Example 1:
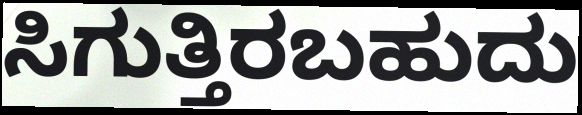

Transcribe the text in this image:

ಸಿಗುತ್ತಿರಬಹುದು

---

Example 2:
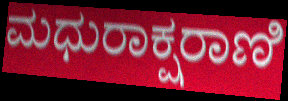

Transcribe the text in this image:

ಮಧುರಾಕ್ಷರಾಣಿ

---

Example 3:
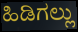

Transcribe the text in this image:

ಹಿಡಿಗಲ್ಲು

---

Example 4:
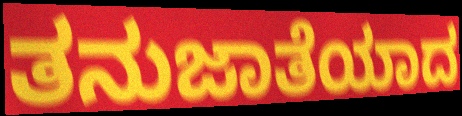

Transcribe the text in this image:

ತನುಜಾತೆಯಾದ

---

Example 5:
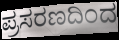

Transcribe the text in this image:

ಪ್ರಸರಣದಿಂದ